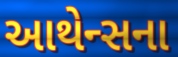
આથેન્સના